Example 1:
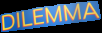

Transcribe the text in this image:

DILEMMA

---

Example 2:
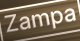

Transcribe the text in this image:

Zampa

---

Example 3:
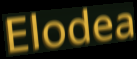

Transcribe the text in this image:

Elodea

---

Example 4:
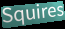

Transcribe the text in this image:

Squires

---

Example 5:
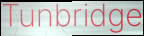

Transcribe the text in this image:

Tunbridge